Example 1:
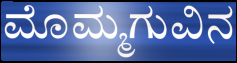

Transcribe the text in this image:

ಮೊಮ್ಮಗುವಿನ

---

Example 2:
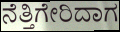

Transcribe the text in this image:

ನೆತ್ತಿಗೇರಿದಾಗ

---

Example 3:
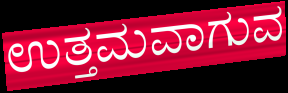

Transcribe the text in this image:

ಉತ್ತಮವಾಗುವ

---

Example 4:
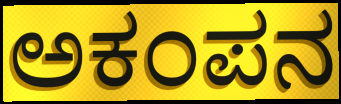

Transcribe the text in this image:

ಅಕಂಪನ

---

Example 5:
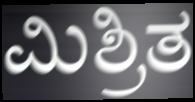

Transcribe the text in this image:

ಮಿಶ್ರಿತ